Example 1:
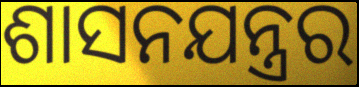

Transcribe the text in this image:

ଶାସନଯନ୍ତ୍ରର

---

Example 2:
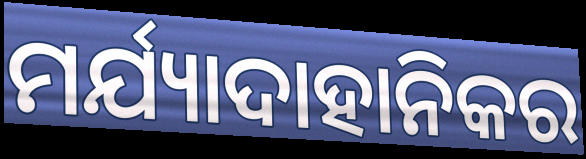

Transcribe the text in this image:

ମର୍ଯ୍ୟାଦାହାନିକର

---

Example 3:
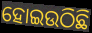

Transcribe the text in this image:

ହୋଇଉଠିଛି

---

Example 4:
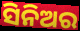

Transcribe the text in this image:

ସିନିଅର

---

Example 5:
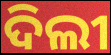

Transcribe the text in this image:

ଦିଲୀ